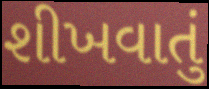
શીખવાતું